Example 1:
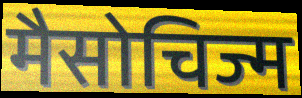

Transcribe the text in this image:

मैसोचिज्म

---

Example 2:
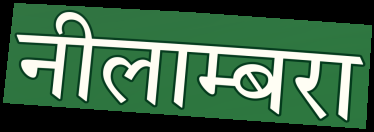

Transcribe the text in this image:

नीलाम्बरा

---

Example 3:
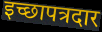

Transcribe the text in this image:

इच्छापत्रदार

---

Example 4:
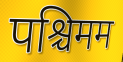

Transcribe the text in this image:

पश्चिमम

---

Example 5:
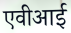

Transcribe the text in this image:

एवीआई